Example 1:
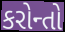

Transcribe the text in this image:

કરોન્તો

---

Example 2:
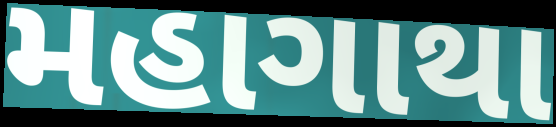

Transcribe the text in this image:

મહાગાથા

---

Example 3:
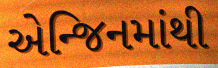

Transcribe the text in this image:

એન્જિનમાંથી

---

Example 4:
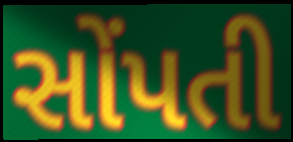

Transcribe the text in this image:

સોંપતી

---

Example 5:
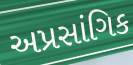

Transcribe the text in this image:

અપ્રસાંગિક